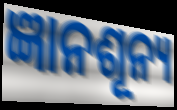
ଜ୍ଞାନଶୂନ୍ୟ